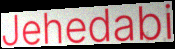
Jehedabi